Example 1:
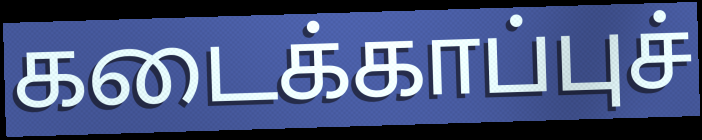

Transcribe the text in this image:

கடைக்காப்புச்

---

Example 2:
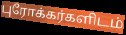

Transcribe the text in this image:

புரோக்கர்களிடம்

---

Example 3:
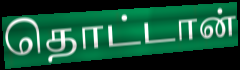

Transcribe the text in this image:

தொட்டான்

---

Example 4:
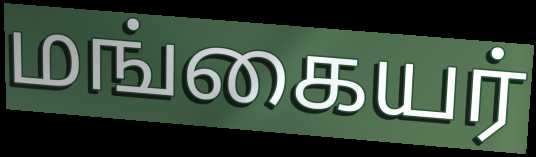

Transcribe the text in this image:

மங்கையர்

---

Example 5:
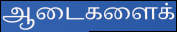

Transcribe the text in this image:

ஆடைகளைக்